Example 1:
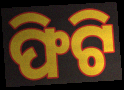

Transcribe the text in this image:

ଫିଟି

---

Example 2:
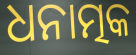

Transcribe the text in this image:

ଧନାତ୍ମକ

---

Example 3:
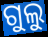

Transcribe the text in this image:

ଗୁଲୁ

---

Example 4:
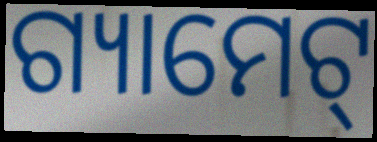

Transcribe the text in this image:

ଗ୍ୟାମେଟ୍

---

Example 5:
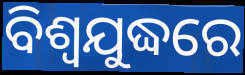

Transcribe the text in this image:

ବିଶ୍ବଯୁଦ୍ଧରେ